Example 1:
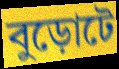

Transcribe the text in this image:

বুড়োটে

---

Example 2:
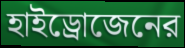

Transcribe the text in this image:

হাইড্রোজেনের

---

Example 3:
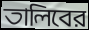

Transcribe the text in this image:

তালিবের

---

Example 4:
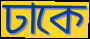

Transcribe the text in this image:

ঢাকে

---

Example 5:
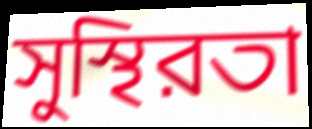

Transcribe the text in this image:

সুস্থিরতা